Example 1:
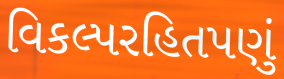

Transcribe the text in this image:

વિકલ્પરહિતપણું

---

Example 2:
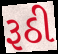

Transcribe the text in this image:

રૂઠી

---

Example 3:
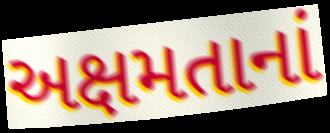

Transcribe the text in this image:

અક્ષમતાનાં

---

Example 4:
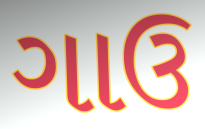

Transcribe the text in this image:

ગાઉ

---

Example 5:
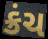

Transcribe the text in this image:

ક્રંચ